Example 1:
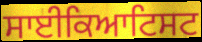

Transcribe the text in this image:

ਸਾਈਕਿਆਟਿਸਟ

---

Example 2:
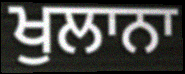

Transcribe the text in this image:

ਖੁਲਾਨਾ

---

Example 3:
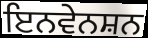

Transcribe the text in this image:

ਇਨਵੇਨਸ਼ਨ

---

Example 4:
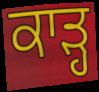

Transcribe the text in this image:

ਕਾੜ੍ਹ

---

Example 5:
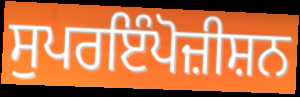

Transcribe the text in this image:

ਸੁਪਰਇੰਪੋਜ਼ੀਸ਼ਨ